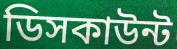
ডিসকাউন্ট